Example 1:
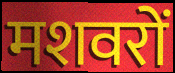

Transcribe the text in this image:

मशवरों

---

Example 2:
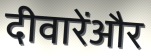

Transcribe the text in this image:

दीवारेंऔर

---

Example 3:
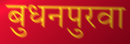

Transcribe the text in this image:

बुधनपुरवा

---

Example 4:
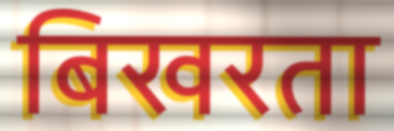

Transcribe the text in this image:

बिखरता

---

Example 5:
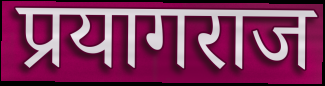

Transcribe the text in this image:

प्रयागराज